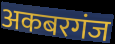
अकबरगंज